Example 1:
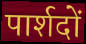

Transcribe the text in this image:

पार्शदों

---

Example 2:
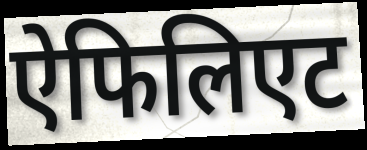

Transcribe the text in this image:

ऐफिलिएट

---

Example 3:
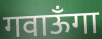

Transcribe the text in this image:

गवाऊँगा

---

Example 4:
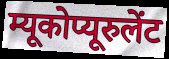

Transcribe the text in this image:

म्यूकोप्यूरुलेंट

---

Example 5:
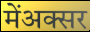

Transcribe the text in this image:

मेंअक्सर